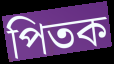
পিতক